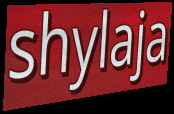
shylaja